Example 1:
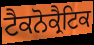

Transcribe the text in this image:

ਟੈਕਨੋਕ੍ਰੈਟਿਕ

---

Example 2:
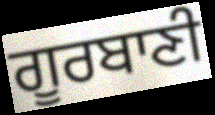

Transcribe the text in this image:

ਗੂਰਬਾਣੀ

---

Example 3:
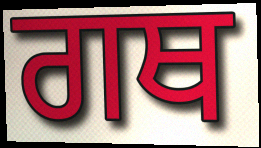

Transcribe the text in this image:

ਗਥ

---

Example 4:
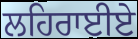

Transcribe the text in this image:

ਲਹਿਰਾਈਏ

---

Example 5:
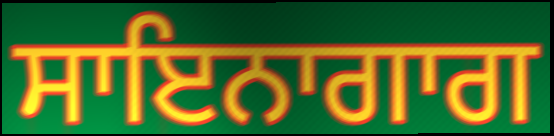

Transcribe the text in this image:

ਸਾਇਨਾਗਾਗ